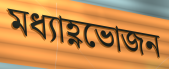
মধ্যাহ্ণভোজন